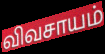
விவசாயம்